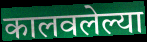
कालवलेल्या